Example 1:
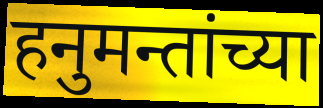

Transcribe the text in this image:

हनुमन्तांच्या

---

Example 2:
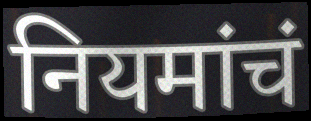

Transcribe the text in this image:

नियमांचं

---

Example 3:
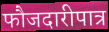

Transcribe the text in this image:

फौजदारीपात्र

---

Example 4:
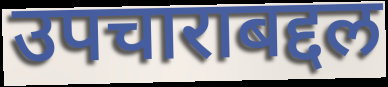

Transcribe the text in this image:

उपचाराबद्दल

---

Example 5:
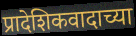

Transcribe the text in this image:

प्रादेशिकवादाच्या